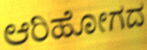
ಆರಿಹೋಗದ